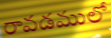
రావడములో